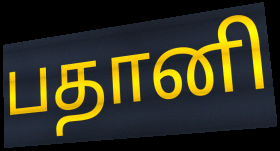
பதானி